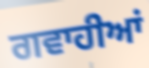
ਗਵਾਹੀਆਂ